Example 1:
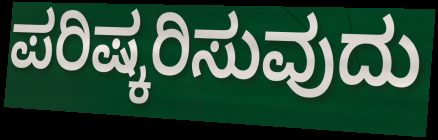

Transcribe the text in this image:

ಪರಿಷ್ಕರಿಸುವುದು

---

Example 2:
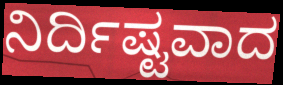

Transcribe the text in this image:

ನಿರ್ದಿಷ್ಟವಾದ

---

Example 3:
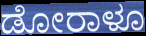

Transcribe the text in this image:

ಡೋರಾಳೂ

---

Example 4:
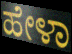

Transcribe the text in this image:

ಹೇಳಾ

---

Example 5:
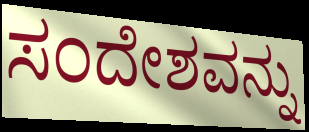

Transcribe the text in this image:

ಸಂದೇಶವನ್ನು